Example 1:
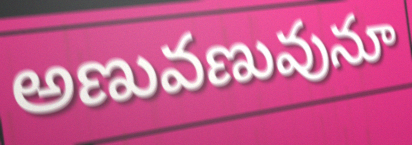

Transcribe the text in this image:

అణువణువునూ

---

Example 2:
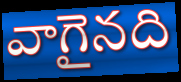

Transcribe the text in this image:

వాగైనది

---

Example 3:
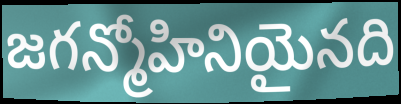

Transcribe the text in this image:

జగన్మోహినియైనది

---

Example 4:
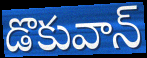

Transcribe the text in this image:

డొకువాన్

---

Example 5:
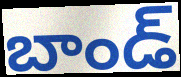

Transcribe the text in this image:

బాండ్